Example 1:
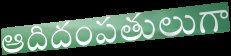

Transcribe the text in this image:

ఆదిదంపతులుగా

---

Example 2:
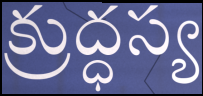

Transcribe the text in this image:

క్రుద్ధస్య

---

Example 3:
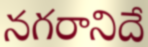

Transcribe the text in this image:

నగరానిదే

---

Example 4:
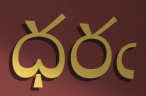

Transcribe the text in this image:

ధరఁ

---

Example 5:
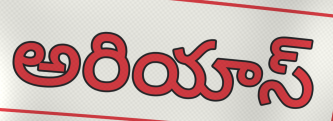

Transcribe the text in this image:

అరియాస్